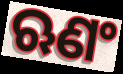
ଋଣଂ